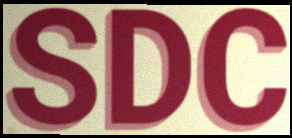
SDC